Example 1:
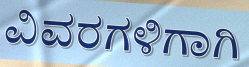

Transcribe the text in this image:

ವಿವರಗಳಿಗಾಗಿ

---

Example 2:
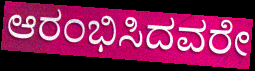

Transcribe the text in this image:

ಆರಂಭಿಸಿದವರೇ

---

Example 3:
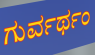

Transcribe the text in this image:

ಗುರ್ವರ್ಥಂ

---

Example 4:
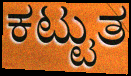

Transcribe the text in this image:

ಕಟ್ಟುತ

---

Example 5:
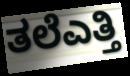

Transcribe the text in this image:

ತಲೆಎತ್ತಿ